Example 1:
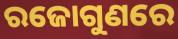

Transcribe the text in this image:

ରଜୋଗୁଣରେ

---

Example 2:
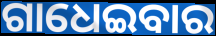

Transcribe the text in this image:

ଗାଧେଇବାର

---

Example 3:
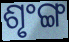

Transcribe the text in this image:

ଶୃଂଙ୍ଗ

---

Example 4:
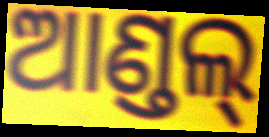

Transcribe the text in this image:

ଆଣ୍ଡଲ୍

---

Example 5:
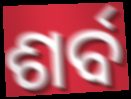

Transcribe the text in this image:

ଶର୍ବ